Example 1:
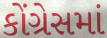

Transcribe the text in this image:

કોંગ્રેસમાં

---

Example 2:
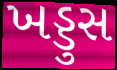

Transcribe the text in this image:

ખડ્ડુસ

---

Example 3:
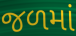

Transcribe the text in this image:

જળમાં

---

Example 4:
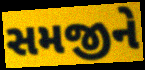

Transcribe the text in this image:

સમજીને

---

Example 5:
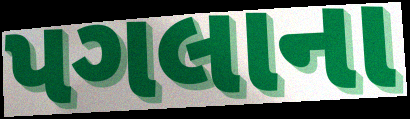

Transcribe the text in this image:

પગલાના